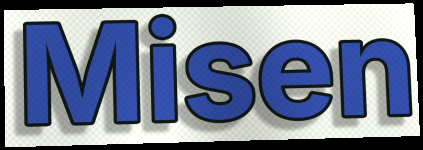
Misen